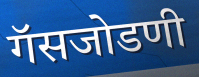
गॅसजोडणी